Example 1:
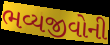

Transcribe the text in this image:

ભવ્યજીવોની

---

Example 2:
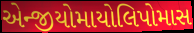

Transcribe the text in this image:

એન્જીયોમાયોલિપોમાસ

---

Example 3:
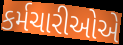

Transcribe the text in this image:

કર્મચારીઓએ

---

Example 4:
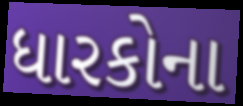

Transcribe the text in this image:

ધારકોના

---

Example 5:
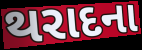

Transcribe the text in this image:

થરાદના